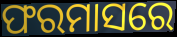
ଫରମାସରେ